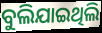
ବୁଲିଯାଇଥିଲି